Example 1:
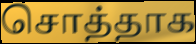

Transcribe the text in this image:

சொத்தாக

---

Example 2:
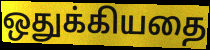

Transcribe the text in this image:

ஒதுக்கியதை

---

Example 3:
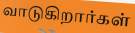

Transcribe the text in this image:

வாடுகிறார்கள்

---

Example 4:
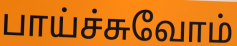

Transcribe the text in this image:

பாய்ச்சுவோம்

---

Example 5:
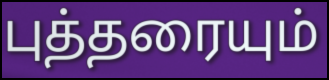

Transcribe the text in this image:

புத்தரையும்